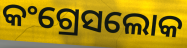
କଂଗ୍ରେସଲୋକ